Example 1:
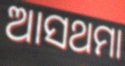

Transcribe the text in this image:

ଆସଥମା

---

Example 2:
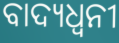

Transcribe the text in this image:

ବାଦ୍ୟଧ୍ୱନୀ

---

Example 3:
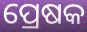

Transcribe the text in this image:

ପ୍ରେଷକ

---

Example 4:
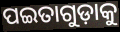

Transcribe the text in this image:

ପଇତାଗୁଡ଼ାକୁ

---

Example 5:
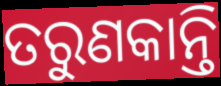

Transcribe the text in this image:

ତରୁଣକାନ୍ତି